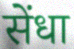
सेंधा